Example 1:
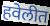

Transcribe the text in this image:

हवेलीत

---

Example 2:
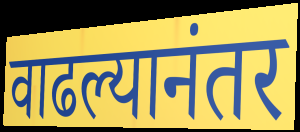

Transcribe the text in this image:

वाढल्यानंतर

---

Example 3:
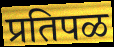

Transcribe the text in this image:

प्रतिपळ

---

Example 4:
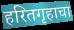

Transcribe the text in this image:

हरितगृहाचा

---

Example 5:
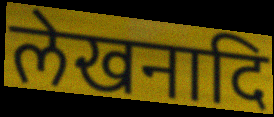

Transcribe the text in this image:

लेखनादि